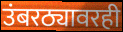
उंबरठ्यावरही